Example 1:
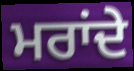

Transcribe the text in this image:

ਮਰਾਂਦੇ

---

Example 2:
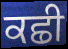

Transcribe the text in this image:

ਕਛੀ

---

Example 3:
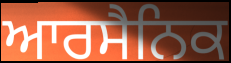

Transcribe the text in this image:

ਆਰਸੈਨਿਕ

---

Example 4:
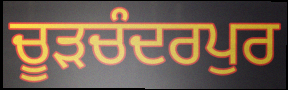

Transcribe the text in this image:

ਚੂੜਚੰਦਰਪੁਰ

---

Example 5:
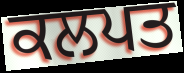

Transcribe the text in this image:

ਕਲਪਤ